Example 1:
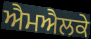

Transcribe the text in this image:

ਐਮਐਲਕੇ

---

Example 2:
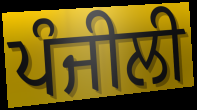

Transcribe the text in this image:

ਪੰਜੀਲੀ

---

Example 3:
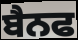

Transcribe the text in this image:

ਬੈਨਫ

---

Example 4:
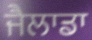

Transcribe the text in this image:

ਜੈਲਾਡਾ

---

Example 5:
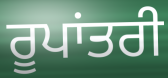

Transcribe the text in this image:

ਰੂਪਾਂਤਰੀ